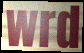
wrd